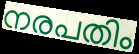
നരപതിം